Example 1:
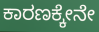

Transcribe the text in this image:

ಕಾರಣಕ್ಕೇನೇ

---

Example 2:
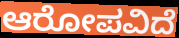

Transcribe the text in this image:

ಆರೋಪವಿದೆ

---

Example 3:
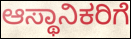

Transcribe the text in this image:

ಆಸ್ಥಾನಿಕರಿಗೆ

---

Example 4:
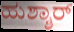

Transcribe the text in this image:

ಹುಶ್ಶಾರ್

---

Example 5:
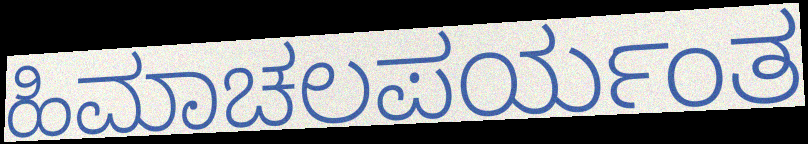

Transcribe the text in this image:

ಹಿಮಾಚಲಪರ್ಯಂತ